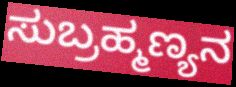
ಸುಬ್ರಹ್ಮಣ್ಯನ